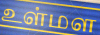
உள்மள